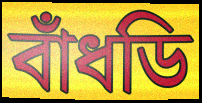
বাঁধডি